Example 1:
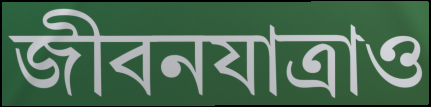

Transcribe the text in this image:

জীবনযাত্রাও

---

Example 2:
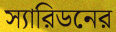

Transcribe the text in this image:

স্যারিডনের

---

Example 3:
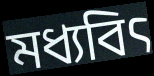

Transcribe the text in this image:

মধ্যবিৎ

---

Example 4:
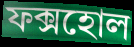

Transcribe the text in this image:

ফক্সহোল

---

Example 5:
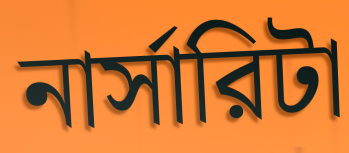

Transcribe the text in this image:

নার্সারিটা